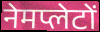
नेमप्लेटों